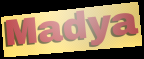
Madya